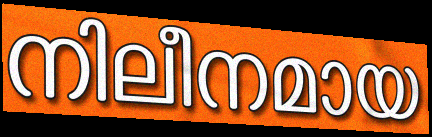
നിലീനമായ